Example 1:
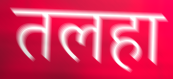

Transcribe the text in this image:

तलहा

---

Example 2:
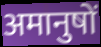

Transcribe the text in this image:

अमानुषों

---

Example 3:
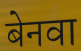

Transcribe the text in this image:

बेनवा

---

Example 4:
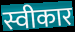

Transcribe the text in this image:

स्‍वीकार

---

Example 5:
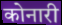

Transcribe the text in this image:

कोनारी